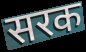
सरक